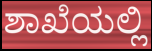
ಶಾಖೆಯಲ್ಲಿ